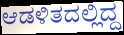
ಆಡಳಿತದಲ್ಲಿದ್ದ